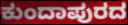
ಕುಂದಾಪುರದ